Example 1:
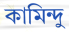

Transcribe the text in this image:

কামিন্দু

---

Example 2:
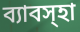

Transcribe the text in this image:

ব্যাবস্হা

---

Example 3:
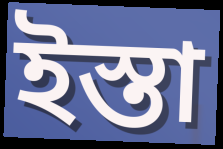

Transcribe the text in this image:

ইস্তা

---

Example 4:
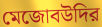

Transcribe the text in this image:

মেজোবউদির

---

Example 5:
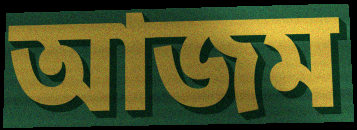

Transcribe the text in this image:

আজম